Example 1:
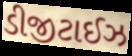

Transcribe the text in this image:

ડીજીટાઈઝ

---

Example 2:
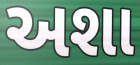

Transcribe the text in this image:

અશા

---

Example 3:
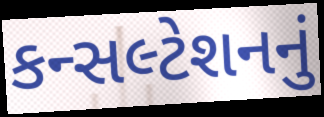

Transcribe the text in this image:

કન્સલ્ટેશનનું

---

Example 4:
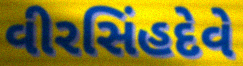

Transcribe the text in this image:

વીરસિંહદેવે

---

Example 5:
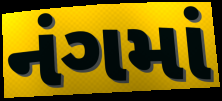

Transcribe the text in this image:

નંગમાં